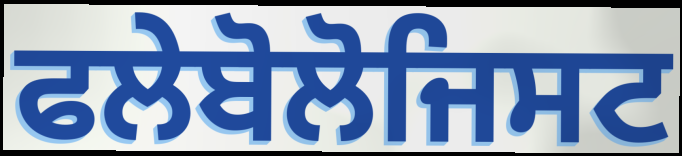
ਫਲੇਬੋਲੋਜਿਸਟ